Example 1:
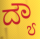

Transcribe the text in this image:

ದ್ಯೌ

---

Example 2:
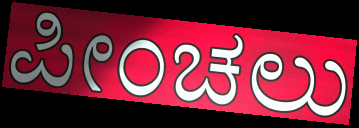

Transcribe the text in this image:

ಪೀಂಚಲು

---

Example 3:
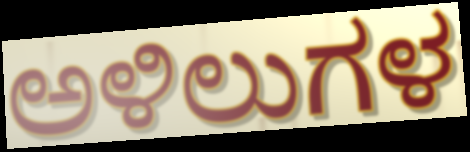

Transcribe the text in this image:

ಅಳಿಲುಗಳ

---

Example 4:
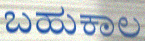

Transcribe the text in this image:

ಬಹುಕಾಲ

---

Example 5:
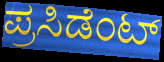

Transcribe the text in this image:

ಪ್ರಸಿಡೆಂಟ್